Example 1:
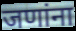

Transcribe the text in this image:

जणांना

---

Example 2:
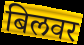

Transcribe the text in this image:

बिलवर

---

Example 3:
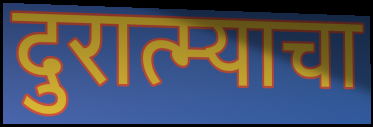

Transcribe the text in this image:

दुरात्म्याचा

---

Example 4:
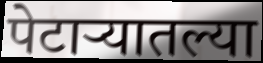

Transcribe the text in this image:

पेटाऱ्यातल्या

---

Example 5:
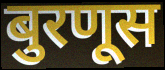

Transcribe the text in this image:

बुरणूस